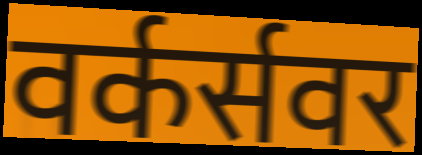
वर्कर्सवर